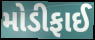
મોડીફાઈ